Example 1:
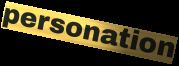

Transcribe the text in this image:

personation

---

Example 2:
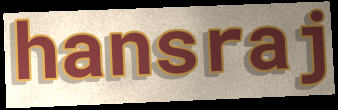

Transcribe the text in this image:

hansraj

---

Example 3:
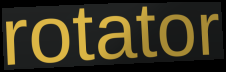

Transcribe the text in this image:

rotator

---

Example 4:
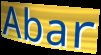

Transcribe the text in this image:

Abar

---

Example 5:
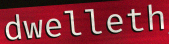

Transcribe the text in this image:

dwelleth